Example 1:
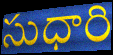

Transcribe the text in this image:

సుధారి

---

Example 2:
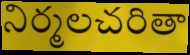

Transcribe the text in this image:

నిర్మలచరితా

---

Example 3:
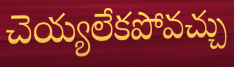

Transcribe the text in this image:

చెయ్యలేకపోవచ్చు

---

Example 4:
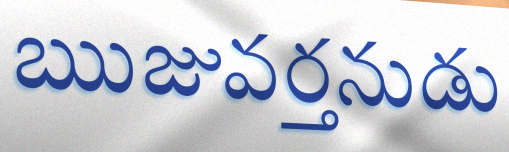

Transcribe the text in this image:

ఋజువర్తనుడు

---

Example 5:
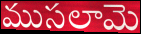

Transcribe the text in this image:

ముసలామె